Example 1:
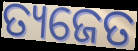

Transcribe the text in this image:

ତ୍ୟଜେତ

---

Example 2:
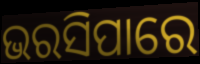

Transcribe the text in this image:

ଭରସିପାରେ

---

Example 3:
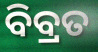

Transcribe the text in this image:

ବିବ୍ରତ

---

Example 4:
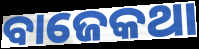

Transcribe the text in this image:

ବାଜେକଥା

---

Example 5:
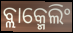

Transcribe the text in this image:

ବ୍ଲାକ୍ମେଲିଂ